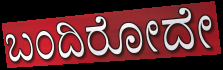
ಬಂದಿರೋದೇ